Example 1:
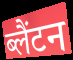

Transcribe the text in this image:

ब्लैंटन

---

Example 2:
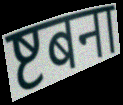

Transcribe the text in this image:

ष्टबना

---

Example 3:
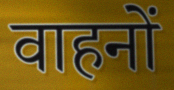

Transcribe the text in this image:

वाहनों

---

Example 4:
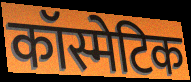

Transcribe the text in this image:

कॉस्मेटिक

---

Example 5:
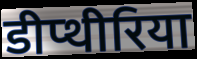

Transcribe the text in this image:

डीप्थीरिया